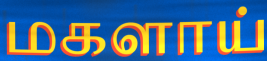
மகளாய்